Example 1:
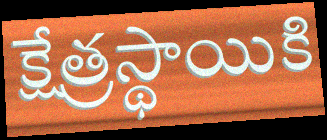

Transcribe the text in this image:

క్షేత్రస్థాయికి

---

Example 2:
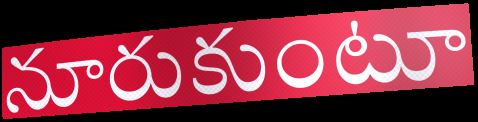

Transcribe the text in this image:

నూరుకుంటూ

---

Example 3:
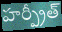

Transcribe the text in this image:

హర్ప్రీత్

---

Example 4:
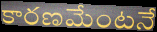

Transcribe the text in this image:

కారణమేంటనే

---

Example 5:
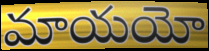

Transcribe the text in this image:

మాయయో